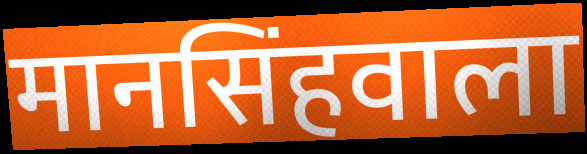
मानसिंहवाला